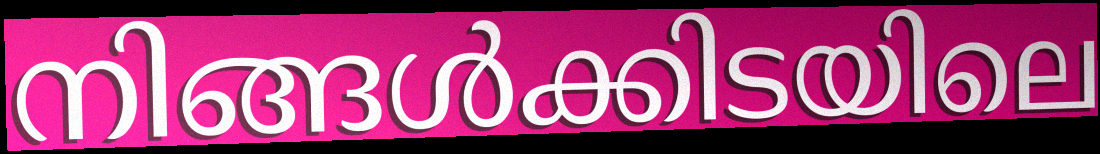
നിങ്ങൾക്കിടയിലെ